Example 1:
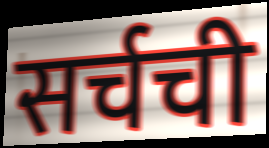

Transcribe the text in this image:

सर्चची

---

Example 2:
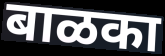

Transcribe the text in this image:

बाळका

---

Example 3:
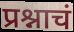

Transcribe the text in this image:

प्रश्नाचं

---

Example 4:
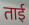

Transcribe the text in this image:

ताई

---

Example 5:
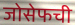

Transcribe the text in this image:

जोसेफची